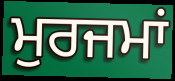
ਮੁਰਜਮਾਂ